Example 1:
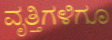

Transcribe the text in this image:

ವೃತ್ತಿಗಳಿಗೂ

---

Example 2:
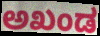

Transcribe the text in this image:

ಅಖಂಡ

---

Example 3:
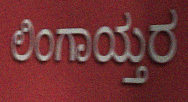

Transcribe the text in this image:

ಲಿಂಗಾಯ್ತರ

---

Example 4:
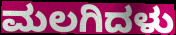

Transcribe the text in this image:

ಮಲಗಿದಳು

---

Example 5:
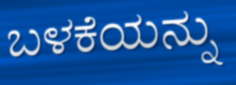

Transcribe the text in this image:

ಬಳಕೆಯನ್ನು